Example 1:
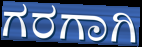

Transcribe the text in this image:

ಗರಗಾಗಿ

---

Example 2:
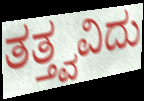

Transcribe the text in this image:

ತತ್ತ್ವವಿದು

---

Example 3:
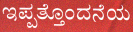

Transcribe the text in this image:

ಇಪ್ಪತ್ತೊಂದನೆಯ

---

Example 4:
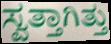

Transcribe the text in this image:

ಸ್ವತ್ತಾಗಿತ್ತು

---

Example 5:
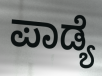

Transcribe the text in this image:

ಪಾಡ್ಯೆ